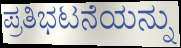
ಪ್ರತಿಭಟನೆಯನ್ನು